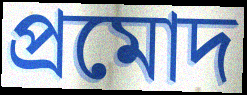
প্রমোদ